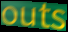
outs